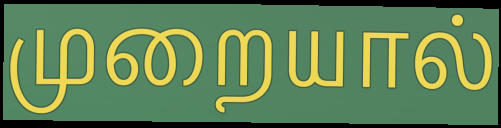
முறையால்